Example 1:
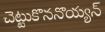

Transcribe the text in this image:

చెట్టుకొననొయ్యన్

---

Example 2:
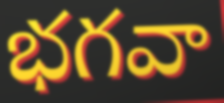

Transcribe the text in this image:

భగవా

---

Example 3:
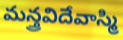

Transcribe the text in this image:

మన్త్రవిదేవాస్మి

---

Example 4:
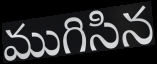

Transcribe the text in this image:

ముగిసిన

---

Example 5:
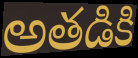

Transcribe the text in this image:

అతడికి